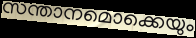
സന്താനമൊക്കെയും